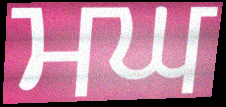
ਮਘ